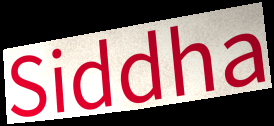
Siddha